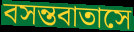
বসন্তবাতাসে